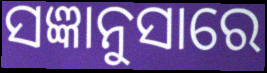
ସଜ୍ଞାନୁସାରେ